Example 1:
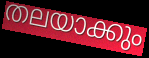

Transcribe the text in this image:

തലയാക്കും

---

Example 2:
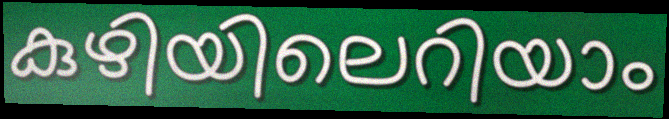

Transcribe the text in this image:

കുഴിയിലെറിയാം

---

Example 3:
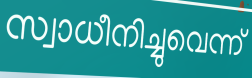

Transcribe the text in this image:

സ്വാധീനിച്ചുവെന്ന്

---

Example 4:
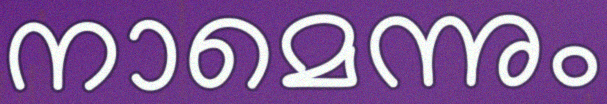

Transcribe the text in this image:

നാമെന്നും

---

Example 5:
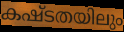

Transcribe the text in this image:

കഷ്ടതയിലും